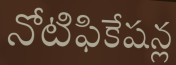
నోటిఫికేషన్ల